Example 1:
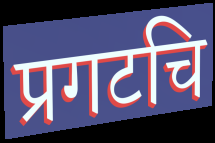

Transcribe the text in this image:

प्रगटचि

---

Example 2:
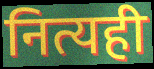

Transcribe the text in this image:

नित्यही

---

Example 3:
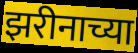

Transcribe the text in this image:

झरीनाच्या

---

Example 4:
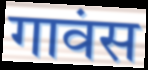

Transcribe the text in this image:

गावंस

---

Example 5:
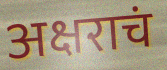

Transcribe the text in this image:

अक्षराचं